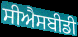
ਸੀਐਸਬੀਡੀ